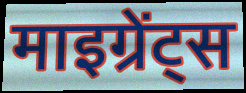
माइग्रेंट्स